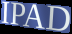
IPAD